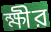
ক্ষীর